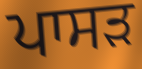
ਪਾਸੜ